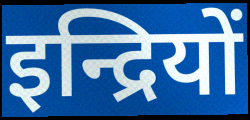
इन्द्रियों